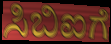
ಸಿಬಿಐಗೆ